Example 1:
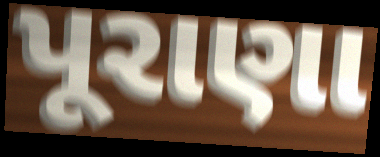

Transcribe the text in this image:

પૂરાણા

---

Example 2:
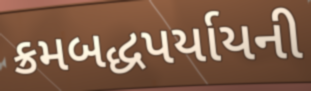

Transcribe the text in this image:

ક્રમબદ્ધપર્યાયની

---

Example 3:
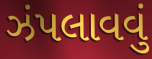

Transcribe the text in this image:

ઝંપલાવવું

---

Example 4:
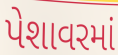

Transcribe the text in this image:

પેશાવરમાં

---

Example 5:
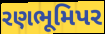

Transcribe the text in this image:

રણભૂમિપર